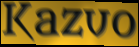
Kazuo